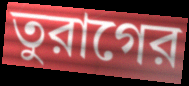
তুরাগের